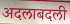
अदलाबदली